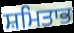
ਸ਼ਮਿਤਾਭ